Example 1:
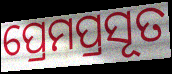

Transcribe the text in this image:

ପ୍ରେମପ୍ରସୂତ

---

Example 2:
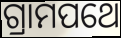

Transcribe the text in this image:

ଗ୍ରାମପଥେ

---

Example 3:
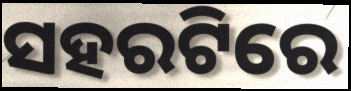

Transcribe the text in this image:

ସହରଟିରେ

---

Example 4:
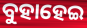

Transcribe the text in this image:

ବୁହାହେଇ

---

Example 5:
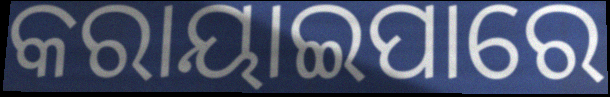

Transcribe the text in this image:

କରାୟାଇପାରେ